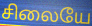
சிலையே